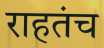
राहतंच